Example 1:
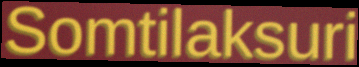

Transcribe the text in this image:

Somtilaksuri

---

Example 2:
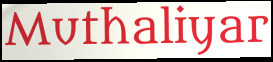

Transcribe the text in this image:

Muthaliyar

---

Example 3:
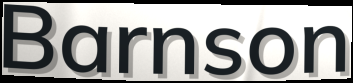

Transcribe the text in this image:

Barnson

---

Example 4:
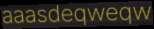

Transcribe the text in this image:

aaasdeqweqw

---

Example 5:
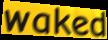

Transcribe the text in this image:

waked